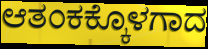
ಆತಂಕಕ್ಕೊಳಗಾದ